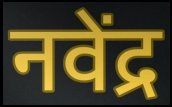
नवेंद्र